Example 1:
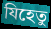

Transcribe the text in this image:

যিহেতু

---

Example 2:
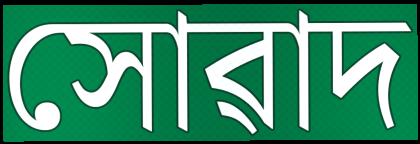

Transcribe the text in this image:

সোৱাদ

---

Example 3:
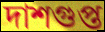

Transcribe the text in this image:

দাশগুপ্ত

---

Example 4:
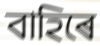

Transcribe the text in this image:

বাহিৰে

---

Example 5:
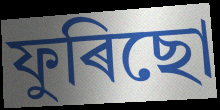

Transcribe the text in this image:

ফুৰিছো